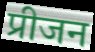
प्रीजन